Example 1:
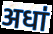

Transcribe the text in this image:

अधा॑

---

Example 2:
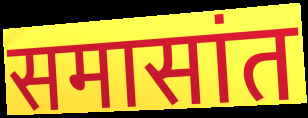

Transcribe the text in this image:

समासांत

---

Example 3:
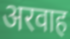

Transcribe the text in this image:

अरवाह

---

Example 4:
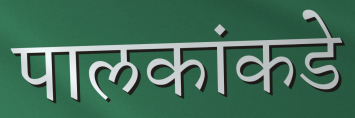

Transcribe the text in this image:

पालकांकडे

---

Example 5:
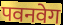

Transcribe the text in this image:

पवनवेग